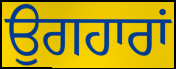
ਉਗਹਾਰਾਂ